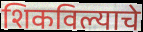
शिकविल्याचे